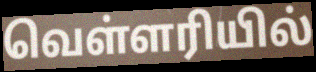
வெள்ளரியில்